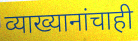
व्याख्यानांचाही